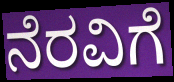
ನೆರವಿಗೆ